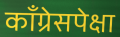
काँग्रेसपेक्षा